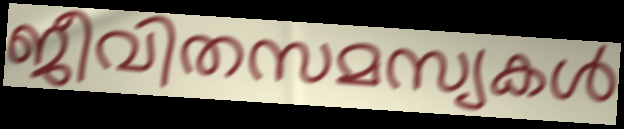
ജീവിതസമസ്യകൾ